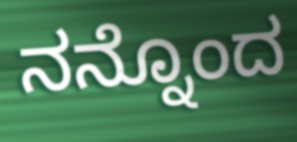
ನನ್ನೊಂದ